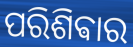
ପରିଶିଵାର